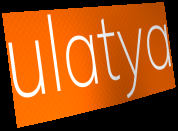
ulatya